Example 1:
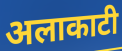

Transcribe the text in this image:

अलाकाटी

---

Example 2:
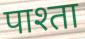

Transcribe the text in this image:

पाश्ता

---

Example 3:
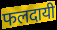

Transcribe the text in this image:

फलदायी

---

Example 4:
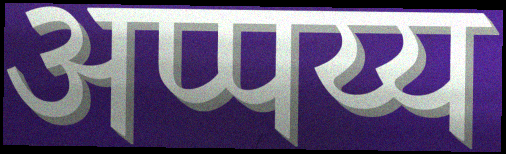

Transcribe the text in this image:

अप्पय्य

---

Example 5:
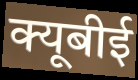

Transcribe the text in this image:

क्यूबीई